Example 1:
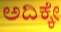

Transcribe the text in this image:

ಅದಿಕ್ಕೇ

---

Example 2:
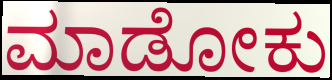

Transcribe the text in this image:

ಮಾಡೋಕು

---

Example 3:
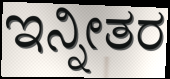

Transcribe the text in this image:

ಇನ್ನೀತರ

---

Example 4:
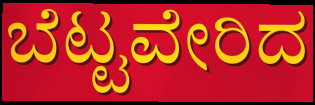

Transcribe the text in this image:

ಬೆಟ್ಟವೇರಿದ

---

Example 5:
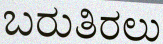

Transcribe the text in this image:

ಬರುತಿರಲು